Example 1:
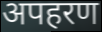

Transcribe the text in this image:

अपहरण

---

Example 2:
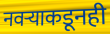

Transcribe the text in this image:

नवऱ्याकडूनही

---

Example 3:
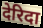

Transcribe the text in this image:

देरिदा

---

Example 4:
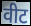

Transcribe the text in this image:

वीट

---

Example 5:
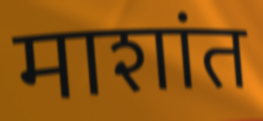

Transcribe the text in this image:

माशांत